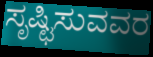
ಸೃಷ್ಟಿಸುವವರ